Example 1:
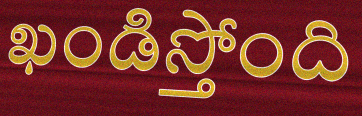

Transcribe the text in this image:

ఖండిస్తోంది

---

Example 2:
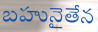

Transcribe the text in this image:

బహునైతేన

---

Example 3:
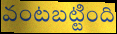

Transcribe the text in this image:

వంటబట్టింది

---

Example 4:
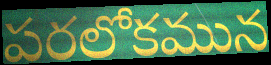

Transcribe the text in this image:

పరలోకమున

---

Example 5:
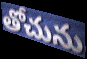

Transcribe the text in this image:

తోచును